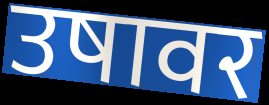
उषावर